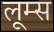
लूम्स